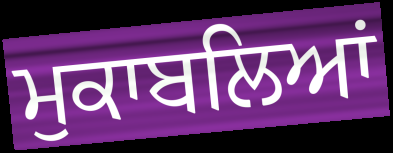
ਮੁਕਾਬਲਿਆਂ